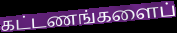
கட்டணங்களைப்